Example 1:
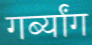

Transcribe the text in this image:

गर्ब्यांग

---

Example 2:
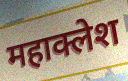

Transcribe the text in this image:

महाक्लेश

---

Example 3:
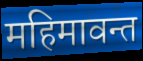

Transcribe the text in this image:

महिमावन्त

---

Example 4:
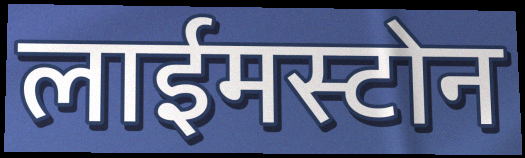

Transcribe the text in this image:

लाईमस्टोन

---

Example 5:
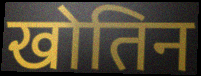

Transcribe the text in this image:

खोतिन